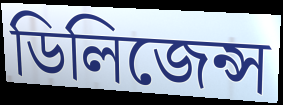
ডিলিজেন্স